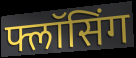
फ्लॉसिंग